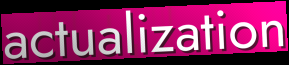
actualization